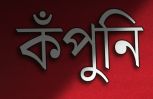
কঁপুনি